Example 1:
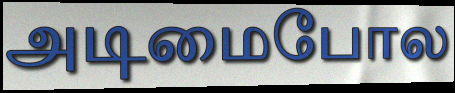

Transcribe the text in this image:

அடிமைபோல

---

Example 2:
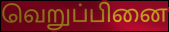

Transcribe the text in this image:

வெறுப்பினை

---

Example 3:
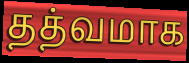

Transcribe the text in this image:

தத்வமாக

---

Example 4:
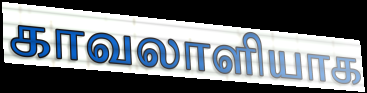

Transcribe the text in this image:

காவலாளியாக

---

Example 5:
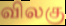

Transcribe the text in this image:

விலகு